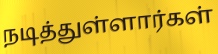
நடித்துள்ளார்கள்